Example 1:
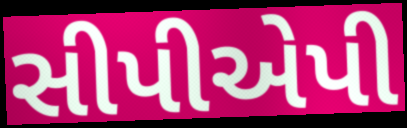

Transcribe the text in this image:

સીપીએપી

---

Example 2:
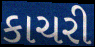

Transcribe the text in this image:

કાચરી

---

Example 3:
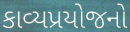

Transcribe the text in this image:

કાવ્યપ્રયોજનો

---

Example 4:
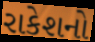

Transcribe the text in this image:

રાકેશનો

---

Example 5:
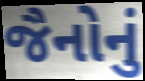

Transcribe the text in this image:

જૈનોનું